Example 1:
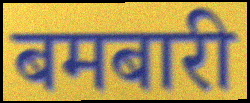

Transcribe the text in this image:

बमबारी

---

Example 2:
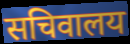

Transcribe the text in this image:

सचिवालय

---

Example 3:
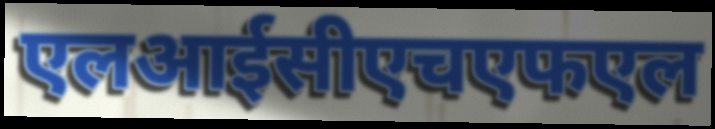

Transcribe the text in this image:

एलआईसीएचएफएल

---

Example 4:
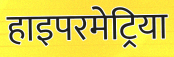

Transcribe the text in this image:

हाइपरमेट्रिया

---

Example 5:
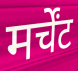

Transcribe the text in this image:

मर्चेंट